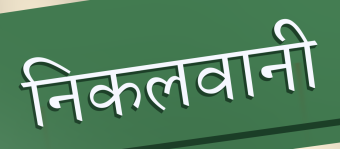
निकलवानी